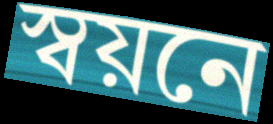
স্বয়নে